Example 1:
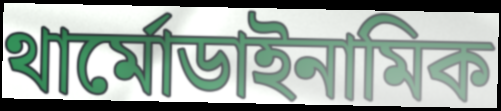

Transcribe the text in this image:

থার্মোডাইনামিক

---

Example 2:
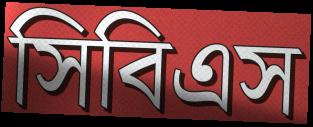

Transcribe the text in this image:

সিবিএস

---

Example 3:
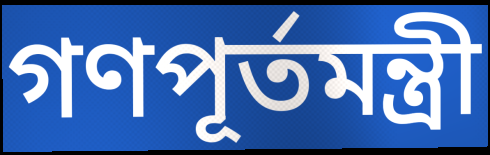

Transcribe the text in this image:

গণপূর্তমন্ত্রী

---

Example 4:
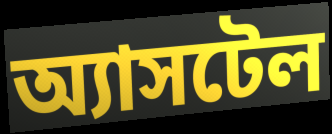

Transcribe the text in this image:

অ্যাসটেল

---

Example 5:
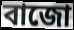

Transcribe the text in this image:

বাজো